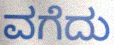
ವಗೆದು